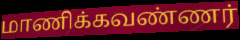
மாணிக்கவண்ணர்